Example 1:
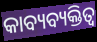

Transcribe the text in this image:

କାବ୍ୟବ୍ୟକ୍ତିତ୍ୱ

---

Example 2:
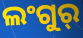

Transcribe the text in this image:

ଲଂଗୁର୍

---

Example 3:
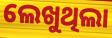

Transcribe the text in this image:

ଲେଖୁଥିଲା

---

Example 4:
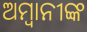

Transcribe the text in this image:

ଅମ୍ବାନୀଙ୍କ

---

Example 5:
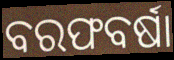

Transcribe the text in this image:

ବରଫବର୍ଷା